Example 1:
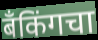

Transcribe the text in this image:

बँकिंगचा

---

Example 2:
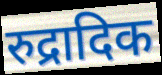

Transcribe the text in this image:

रुद्रादिक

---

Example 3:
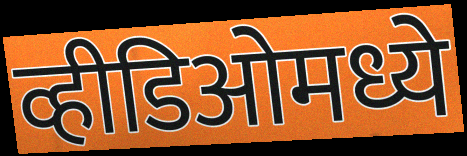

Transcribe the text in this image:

व्हीडिओमध्ये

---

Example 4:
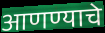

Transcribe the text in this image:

आणण्याचे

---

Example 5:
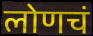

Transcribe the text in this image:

लोणचं